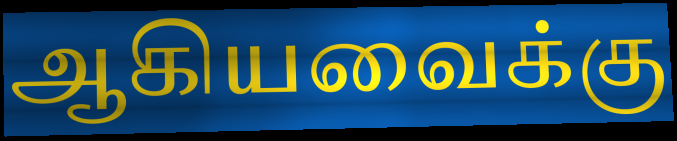
ஆகியவைக்கு